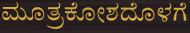
ಮೂತ್ರಕೋಶದೊಳಗೆ